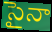
సైనా